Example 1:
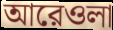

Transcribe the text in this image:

আরেওলা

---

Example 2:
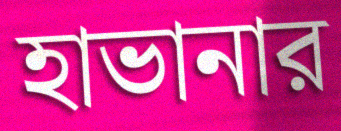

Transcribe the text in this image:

হাভানার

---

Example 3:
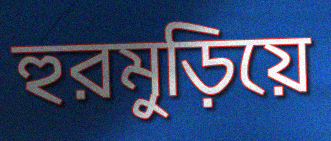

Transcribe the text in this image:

হুরমুড়িয়ে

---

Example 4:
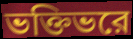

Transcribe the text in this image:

ভক্তিভরে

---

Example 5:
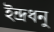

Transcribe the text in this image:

ইন্দ্রধনু